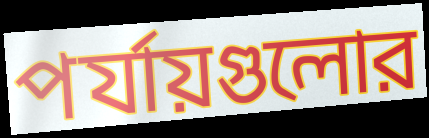
পর্যায়গুলোর